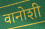
वानोशी